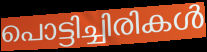
പൊട്ടിച്ചിരികൾ